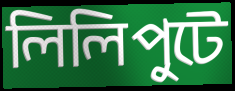
লিলিপুটে